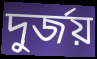
দুৰ্জয়